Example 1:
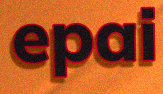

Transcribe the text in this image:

epai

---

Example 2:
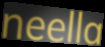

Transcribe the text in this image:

neella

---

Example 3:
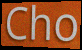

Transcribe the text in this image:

Cho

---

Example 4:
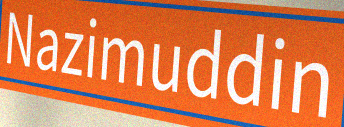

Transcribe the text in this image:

Nazimuddin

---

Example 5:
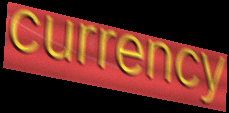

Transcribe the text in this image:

currency